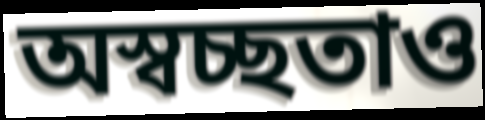
অস্বচ্ছতাও